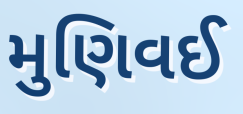
મુણિવઈ